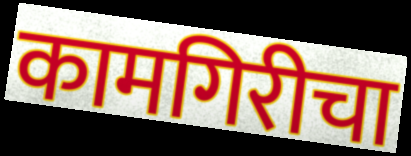
कामगिरीचा